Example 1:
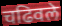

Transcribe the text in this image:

चढिवले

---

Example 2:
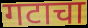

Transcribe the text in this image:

गटाचा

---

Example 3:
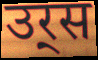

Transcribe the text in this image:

उर्स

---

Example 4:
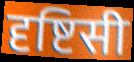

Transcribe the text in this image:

दृष्टिसी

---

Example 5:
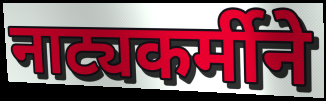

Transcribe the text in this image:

नाट्यकर्मीने